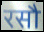
रसौ